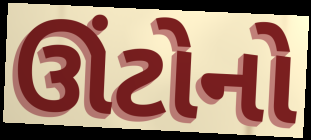
ઊંટોનો